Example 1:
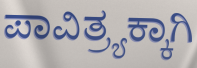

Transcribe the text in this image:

ಪಾವಿತ್ರ್ಯಕ್ಕಾಗಿ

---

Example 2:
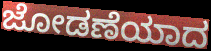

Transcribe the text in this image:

ಜೋಡಣೆಯಾದ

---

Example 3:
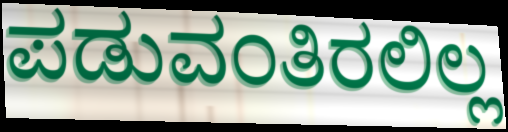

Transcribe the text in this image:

ಪಡುವಂತಿರಲಿಲ್ಲ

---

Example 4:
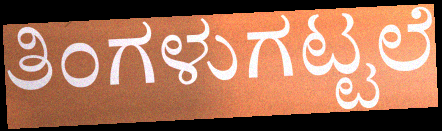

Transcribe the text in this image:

ತಿಂಗಳುಗಟ್ಟಲೆ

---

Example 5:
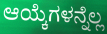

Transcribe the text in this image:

ಆಯ್ಕೆಗಳನ್ನೆಲ್ಲ